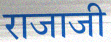
राजाजी